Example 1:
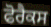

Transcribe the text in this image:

ਫੋਰੈਕਸ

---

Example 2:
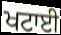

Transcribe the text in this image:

ਖਟਾਈ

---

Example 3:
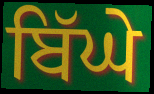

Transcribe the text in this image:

ਬਿੱਘੇ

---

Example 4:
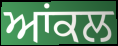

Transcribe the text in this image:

ਆਂਕਲ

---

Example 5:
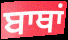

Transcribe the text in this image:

ਬਾਥਾਂ